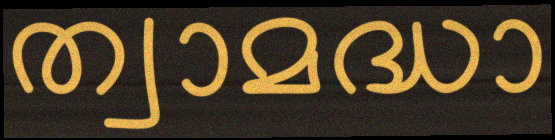
ത്വാമദ്ധാ